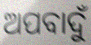
ଅପବାଦୁଁ